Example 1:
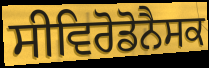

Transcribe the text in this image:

ਸੀਵਿਰੋਡੋਨੈਸਕ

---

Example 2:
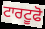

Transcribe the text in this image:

ਟਾਰਟੂਫੋ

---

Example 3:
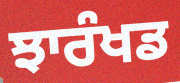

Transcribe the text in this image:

ਝਾਰੰਖਡ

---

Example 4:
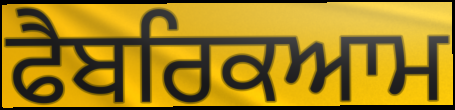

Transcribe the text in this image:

ਫੈਬਰਿਕਆਮ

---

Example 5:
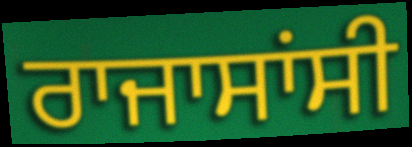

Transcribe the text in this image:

ਰਾਜਾਸਾਂਸੀ